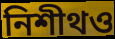
নিশীথও